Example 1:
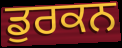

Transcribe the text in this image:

ਡੁਰਕਨ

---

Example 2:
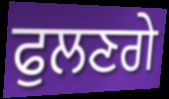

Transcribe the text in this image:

ਫੁਲਣਗੇ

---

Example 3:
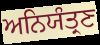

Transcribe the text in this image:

ਅਨਿਯੰਤ੍ਰਣ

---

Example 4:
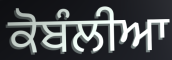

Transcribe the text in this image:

ਕੋਬੰਲੀਆ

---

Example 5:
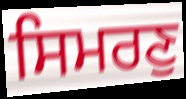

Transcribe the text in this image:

ਸਿਮਰਣੁ